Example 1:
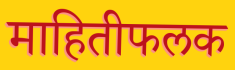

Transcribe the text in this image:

माहितीफलक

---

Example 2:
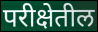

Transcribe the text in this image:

परीक्षेतील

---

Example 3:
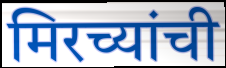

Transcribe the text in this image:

मिरच्यांची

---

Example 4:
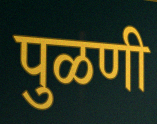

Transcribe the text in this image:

पुळणी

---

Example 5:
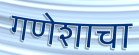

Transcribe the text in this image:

गणेशाचा